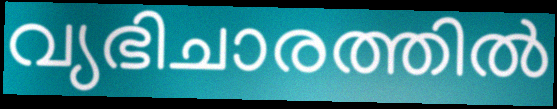
വ്യഭിചാരത്തിൽ